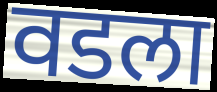
वडला